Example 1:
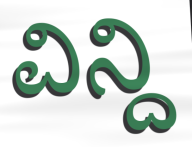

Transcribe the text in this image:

ವಿನ್ದಿ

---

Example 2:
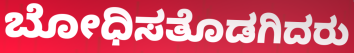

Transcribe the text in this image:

ಬೋಧಿಸತೊಡಗಿದರು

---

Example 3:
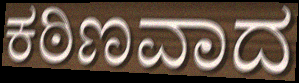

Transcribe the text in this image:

ಕಠಿಣವಾದ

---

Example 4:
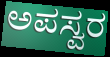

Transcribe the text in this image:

ಅಪಸ್ವರ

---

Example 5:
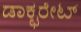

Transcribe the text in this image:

ಡಾಕ್ಟರೇಟ್